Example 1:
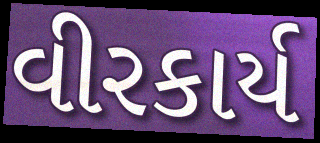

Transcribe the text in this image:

વીરકાર્ય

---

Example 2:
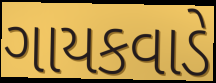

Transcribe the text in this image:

ગાયકવાડે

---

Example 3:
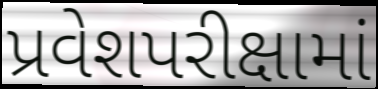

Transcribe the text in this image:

પ્રવેશપરીક્ષામાં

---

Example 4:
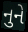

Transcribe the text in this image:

નુને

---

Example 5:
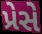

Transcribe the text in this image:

પ્રેસે